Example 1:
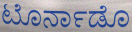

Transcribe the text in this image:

ಟೊರ್ನಾಡೊ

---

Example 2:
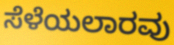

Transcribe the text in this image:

ಸೆಳೆಯಲಾರವು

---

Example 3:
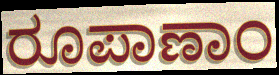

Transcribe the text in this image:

ರೂಪಾಣಾಂ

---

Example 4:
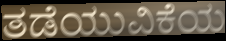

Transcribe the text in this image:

ತಡೆಯುವಿಕೆಯ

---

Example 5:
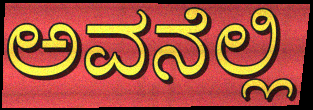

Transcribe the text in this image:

ಅವನೆಲ್ಲಿ